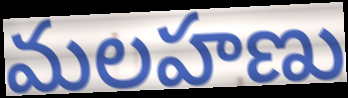
మలహణు